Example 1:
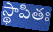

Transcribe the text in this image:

స్థాపితః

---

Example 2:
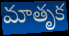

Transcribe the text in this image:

మాతృక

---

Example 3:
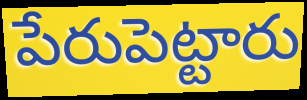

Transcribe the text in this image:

పేరుపెట్టారు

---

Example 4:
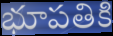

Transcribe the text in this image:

భూపతికి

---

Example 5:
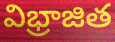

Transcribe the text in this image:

విభ్రాజిత